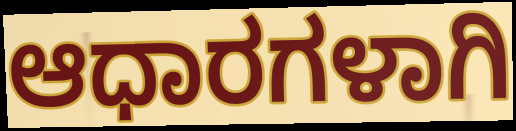
ಆಧಾರಗಳಾಗಿ